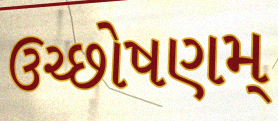
ઉચ્છોષણમ્